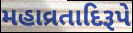
મહાવ્રતાદિરૂપે